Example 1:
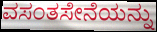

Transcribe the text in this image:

ವಸಂತಸೇನೆಯನ್ನು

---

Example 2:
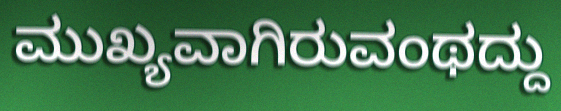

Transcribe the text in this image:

ಮುಖ್ಯವಾಗಿರುವಂಥದ್ದು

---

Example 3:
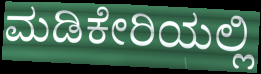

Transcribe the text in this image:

ಮಡಿಕೇರಿಯಲ್ಲಿ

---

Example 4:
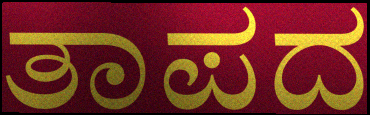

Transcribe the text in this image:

ತಾಪದ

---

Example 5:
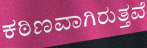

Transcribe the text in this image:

ಕಠಿಣವಾಗಿರುತ್ತವೆ